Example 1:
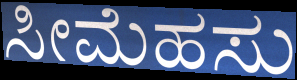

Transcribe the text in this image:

ಸೀಮೆಹಸು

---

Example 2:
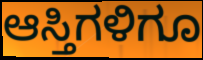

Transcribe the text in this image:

ಆಸ್ತಿಗಳಿಗೂ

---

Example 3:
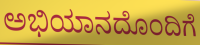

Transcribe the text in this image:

ಅಭಿಯಾನದೊಂದಿಗೆ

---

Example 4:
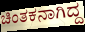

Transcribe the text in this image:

ಚಿಂತಕನಾಗಿದ್ದ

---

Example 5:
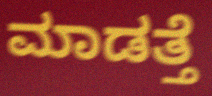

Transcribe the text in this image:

ಮಾಡತ್ತೆ